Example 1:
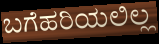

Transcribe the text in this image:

ಬಗೆಹರಿಯಲಿಲ್ಲ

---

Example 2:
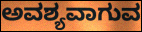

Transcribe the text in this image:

ಅವಶ್ಯವಾಗುವ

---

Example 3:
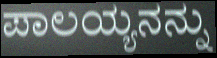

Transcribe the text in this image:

ಪಾಲಯ್ಯನನ್ನು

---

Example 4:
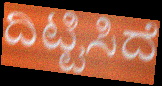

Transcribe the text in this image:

ದಿಟ್ಟಿಸಿದೆ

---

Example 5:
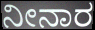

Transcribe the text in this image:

ನೀನಾರ